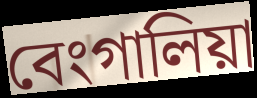
বেংগালিয়া